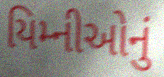
યિમ્નીઓનું